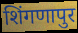
शिंगणापुर